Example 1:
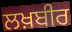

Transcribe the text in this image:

ਲਖ਼ਬੀਰ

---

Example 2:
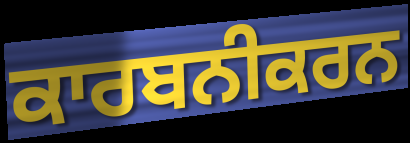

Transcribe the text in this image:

ਕਾਰਬਨੀਕਰਨ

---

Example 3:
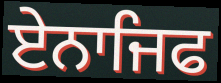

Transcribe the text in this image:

ਏਨਾਜਿਫ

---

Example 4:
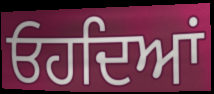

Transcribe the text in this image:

ਓਹਦਿਆਂ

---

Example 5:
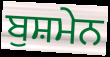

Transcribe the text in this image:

ਬੁਸ਼ਮੇਨ